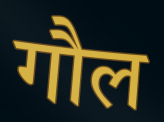
गौल